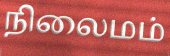
நிலைமம்